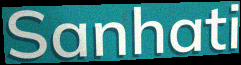
Sanhati